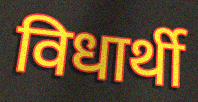
विधार्थी